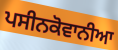
ਪਸੀਨਕੋਵਾਨੀਆ